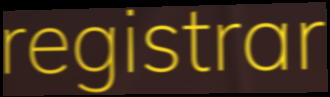
registrar